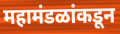
महामंडळांकडून